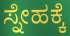
ಸ್ನೇಹಕ್ಕೆ